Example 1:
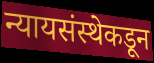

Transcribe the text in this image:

न्यायसंस्थेकडून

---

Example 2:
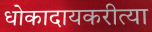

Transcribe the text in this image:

धोकादायकरीत्या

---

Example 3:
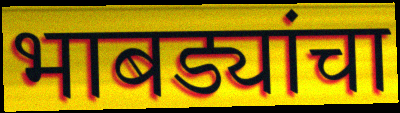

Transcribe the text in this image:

भाबड्यांचा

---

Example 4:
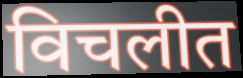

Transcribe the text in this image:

विचलीत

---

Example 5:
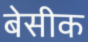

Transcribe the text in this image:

बेसीक